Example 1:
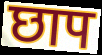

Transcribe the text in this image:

छाप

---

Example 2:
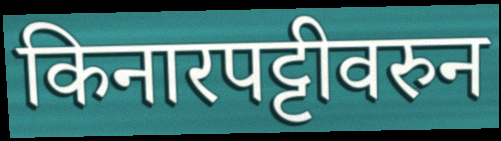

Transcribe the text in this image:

किनारपट्टीवरुन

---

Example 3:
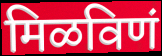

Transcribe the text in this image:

मिळविणं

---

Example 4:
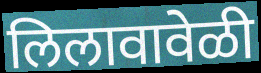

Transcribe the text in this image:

लिलावावेळी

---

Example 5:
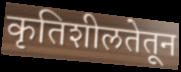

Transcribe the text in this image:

कृतिशीलतेतून